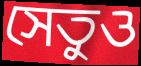
সেতুও